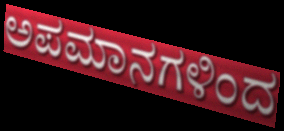
ಅಪಮಾನಗಳಿಂದ